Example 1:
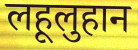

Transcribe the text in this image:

लहूलुहान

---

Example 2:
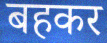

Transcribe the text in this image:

बहकर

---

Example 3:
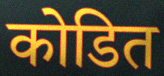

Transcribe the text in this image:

कोडित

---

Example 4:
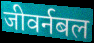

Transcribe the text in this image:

जीवर्नबल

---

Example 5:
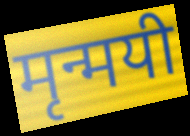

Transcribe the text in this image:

मृन्मयी